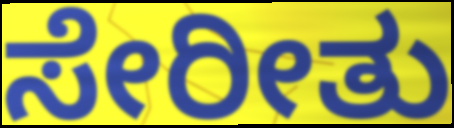
ಸೇರೀತು